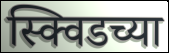
स्क्विडच्या